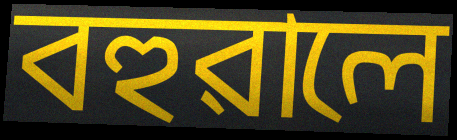
বহুৱালে